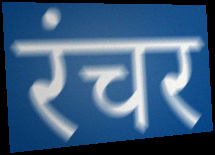
रंचर